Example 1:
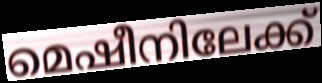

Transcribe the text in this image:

മെഷീനിലേക്ക്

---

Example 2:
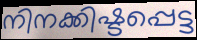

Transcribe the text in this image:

നിനക്കിഷ്ടപ്പെട്ട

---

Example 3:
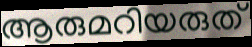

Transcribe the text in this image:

ആരുമറിയരുത്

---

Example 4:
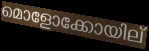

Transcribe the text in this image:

മൊളോക്കോയില്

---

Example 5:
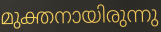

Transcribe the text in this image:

മുക്തനായിരുന്നു